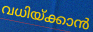
വധിയ്ക്കാൻ